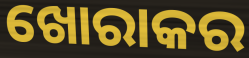
ଖୋରାକର